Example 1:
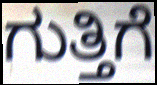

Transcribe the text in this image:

ಗುತ್ತಿಗೆ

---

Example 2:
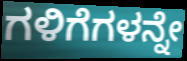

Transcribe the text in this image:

ಗಳಿಗೆಗಳನ್ನೇ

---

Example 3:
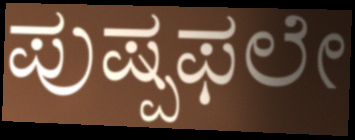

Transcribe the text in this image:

ಪುಷ್ಪಫಲೇ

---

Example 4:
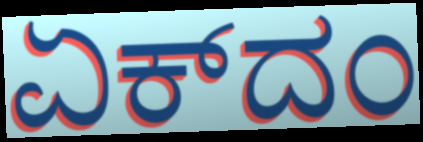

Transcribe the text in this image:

ಏಕ್‌ದಂ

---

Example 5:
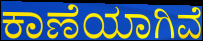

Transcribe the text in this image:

ಕಾಣೆಯಾಗಿವೆ